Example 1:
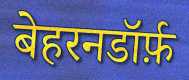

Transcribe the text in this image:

बेहरनडॉर्फ़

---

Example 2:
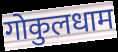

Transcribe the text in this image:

गोकुलधाम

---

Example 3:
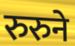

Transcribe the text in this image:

रुरुने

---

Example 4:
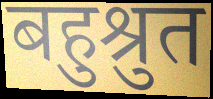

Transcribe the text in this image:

बहुश्रुत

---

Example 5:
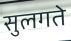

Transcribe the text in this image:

सुलगते